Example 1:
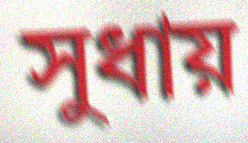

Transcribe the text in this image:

সুধায়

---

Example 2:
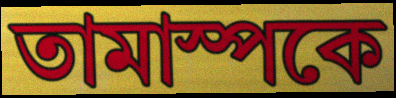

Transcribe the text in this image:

তামাস্পকে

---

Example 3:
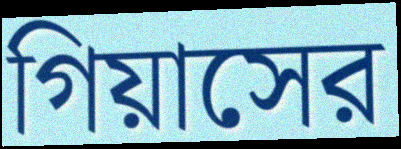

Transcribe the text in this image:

গিয়াসের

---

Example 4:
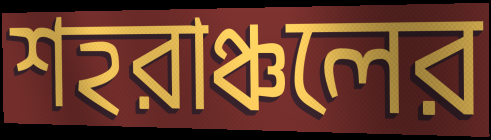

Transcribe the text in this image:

শহরাঞ্চলের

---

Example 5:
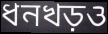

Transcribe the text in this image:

ধনখড়ও